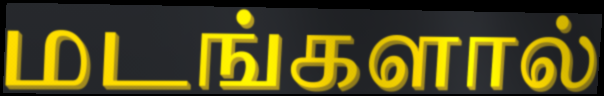
மடங்களால்